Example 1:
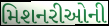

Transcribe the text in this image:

મિશનરીઓની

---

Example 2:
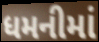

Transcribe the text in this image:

ધમનીમાં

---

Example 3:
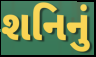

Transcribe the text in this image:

શનિનું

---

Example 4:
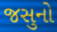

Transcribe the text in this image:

જસુનો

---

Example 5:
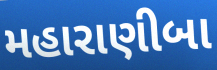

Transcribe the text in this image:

મહારાણીબા